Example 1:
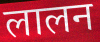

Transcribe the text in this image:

लालन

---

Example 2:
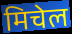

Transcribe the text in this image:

मिचेल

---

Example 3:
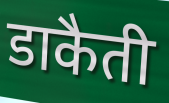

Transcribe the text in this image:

डाकैती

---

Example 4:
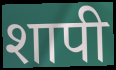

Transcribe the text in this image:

शापी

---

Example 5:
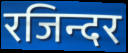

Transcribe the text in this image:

रजिन्दर